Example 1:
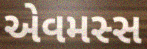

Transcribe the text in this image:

એવમસ્સ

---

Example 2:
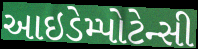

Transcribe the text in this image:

આઇડેમ્પોટેન્સી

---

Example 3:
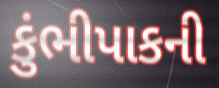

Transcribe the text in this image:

કુંભીપાકની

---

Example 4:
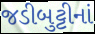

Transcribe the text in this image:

જડીબુટ્ટીનાં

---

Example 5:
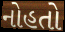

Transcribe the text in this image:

નોહતો